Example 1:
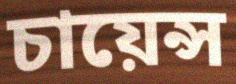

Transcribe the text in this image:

চায়েন্স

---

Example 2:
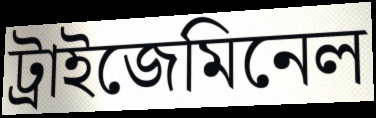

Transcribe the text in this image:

ট্ৰাইজেমিনেল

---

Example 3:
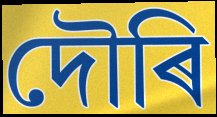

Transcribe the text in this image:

দৌৰি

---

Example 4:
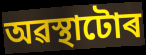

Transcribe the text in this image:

অৱস্থাটোৰ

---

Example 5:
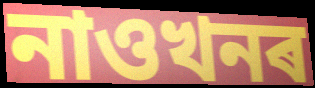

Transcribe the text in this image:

নাওখনৰ